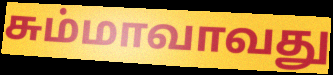
சும்மாவாவது